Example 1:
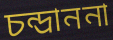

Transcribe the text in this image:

চন্দ্রাননা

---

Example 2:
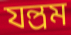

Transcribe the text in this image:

যন্ত্রম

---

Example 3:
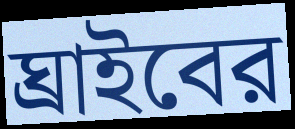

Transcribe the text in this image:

ঘ্রাইবের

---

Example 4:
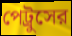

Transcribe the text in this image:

পেট্রুসের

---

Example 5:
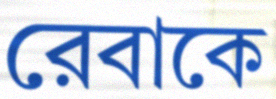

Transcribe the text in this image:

রেবাকে